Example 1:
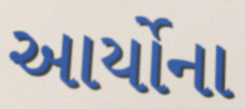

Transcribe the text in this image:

આર્યોના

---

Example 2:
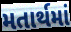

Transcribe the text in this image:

મતાર્થમાં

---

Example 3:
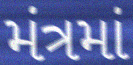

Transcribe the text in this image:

મંત્રમાં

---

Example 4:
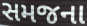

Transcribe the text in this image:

સમજના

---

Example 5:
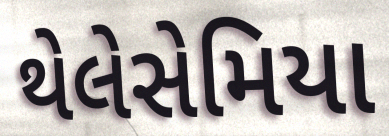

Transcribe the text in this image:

થેલેસેમિયા